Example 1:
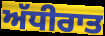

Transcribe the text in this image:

ਅੱਧੀਰਾਤ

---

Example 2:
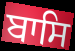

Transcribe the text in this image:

ਬਾਸਿ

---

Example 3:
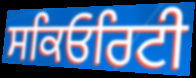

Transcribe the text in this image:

ਸਕਿਓਰਿਟੀ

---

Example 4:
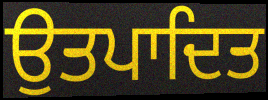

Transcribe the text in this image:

ਉਤਪਾਦਿਤ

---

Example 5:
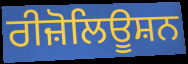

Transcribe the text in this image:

ਰੀਜ਼ੋਲਿਊਸ਼ਨ